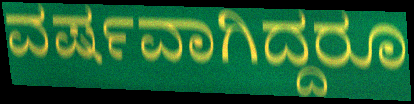
ವರ್ಷವಾಗಿದ್ದರೂ